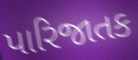
પારિજાતક